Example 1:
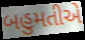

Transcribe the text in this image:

બહુમતીએ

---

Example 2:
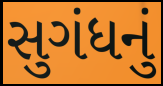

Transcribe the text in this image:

સુગંધનું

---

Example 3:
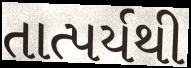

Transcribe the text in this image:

તાત્પર્યથી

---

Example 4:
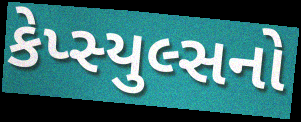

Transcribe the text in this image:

કેપ્સ્યુલ્સનો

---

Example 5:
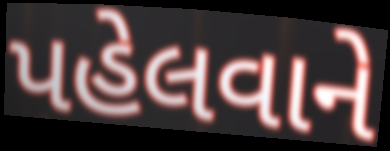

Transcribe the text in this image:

પહેલવાને